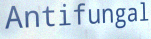
Antifungal